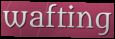
wafting